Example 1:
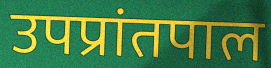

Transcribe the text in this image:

उपप्रांतपाल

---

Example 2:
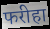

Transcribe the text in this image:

फरीहा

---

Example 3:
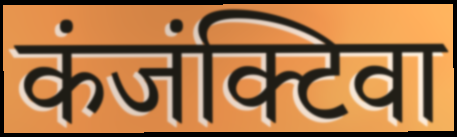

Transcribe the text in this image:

कंजंक्टिवा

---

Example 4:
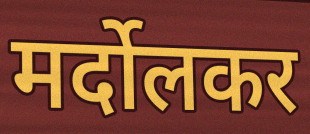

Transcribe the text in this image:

मर्दोलकर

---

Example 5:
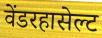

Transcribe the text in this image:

वेंडरहासेल्ट